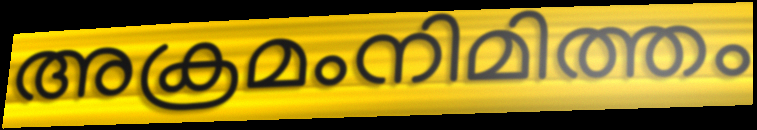
അക്രമംനിമിത്തം